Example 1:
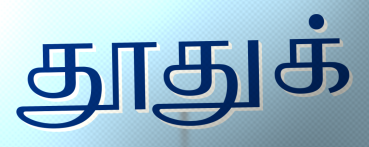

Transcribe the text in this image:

தூதுக்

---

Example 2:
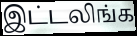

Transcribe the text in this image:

இட்டலிங்க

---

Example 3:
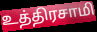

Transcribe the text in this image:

உத்திரசாமி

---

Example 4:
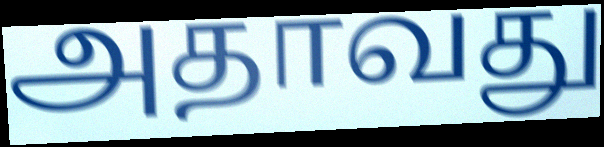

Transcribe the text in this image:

அதாவது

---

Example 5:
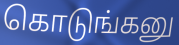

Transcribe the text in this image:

கொடுங்கனு